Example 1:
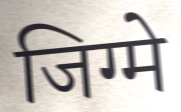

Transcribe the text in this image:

जिग्मे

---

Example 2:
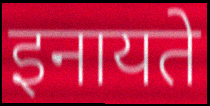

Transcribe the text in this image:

इनायते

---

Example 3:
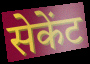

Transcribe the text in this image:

सेकेंट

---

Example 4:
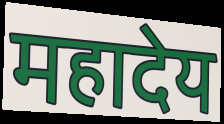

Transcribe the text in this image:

महादेय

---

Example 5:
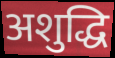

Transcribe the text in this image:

अशुद्धि